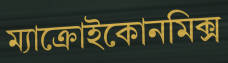
ম্যাক্রোইকোনমিক্স